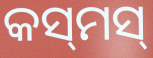
କସ୍‌ମସ୍